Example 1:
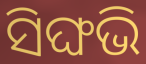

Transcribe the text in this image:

ସିଙ୍ଘଭି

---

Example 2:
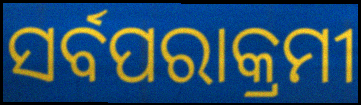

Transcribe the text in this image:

ସର୍ବପରାକ୍ରମୀ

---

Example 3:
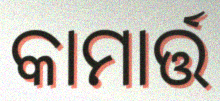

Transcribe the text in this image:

କାମାର୍ତ୍ତ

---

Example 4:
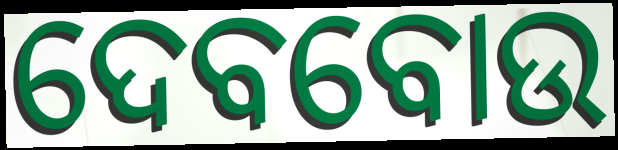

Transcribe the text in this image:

ଦେବବୋଉ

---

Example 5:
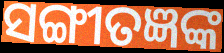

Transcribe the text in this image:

ସଙ୍ଗୀତଜ୍ଞଙ୍କ